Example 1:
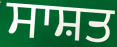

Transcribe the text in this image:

ਸਾਸ਼ਤ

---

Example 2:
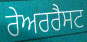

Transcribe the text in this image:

ਰੇਅਰਰੈਸਟ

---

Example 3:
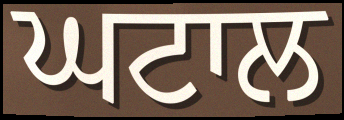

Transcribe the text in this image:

ਘਟਾਲ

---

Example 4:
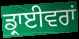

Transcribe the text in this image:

ਡ੍ਰਾਈਵਰਾਂ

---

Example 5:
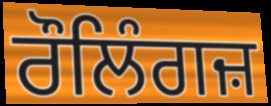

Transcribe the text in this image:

ਰੌਲਿੰਗਜ਼